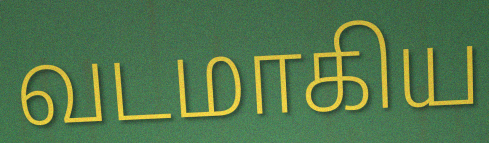
வடமாகிய